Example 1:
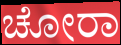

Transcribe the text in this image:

ಚೋರಾ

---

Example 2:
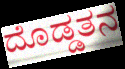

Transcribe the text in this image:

ದೊಡ್ಡತನ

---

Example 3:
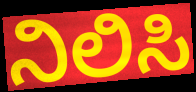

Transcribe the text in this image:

ನಿಲಿಸಿ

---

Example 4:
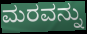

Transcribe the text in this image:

ಮರವನ್ನು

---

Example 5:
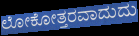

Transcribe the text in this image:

ಲೋಕೋತ್ತರವಾದುದು